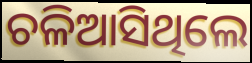
ଚଳିଆସିଥିଲେ